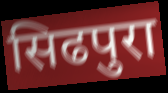
सिढपुरा